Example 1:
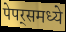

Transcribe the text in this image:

पेपर्समध्ये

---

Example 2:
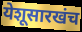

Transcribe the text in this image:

येशूसारखंच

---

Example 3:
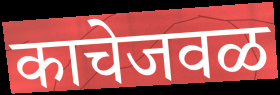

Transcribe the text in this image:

काचेजवळ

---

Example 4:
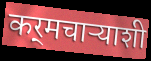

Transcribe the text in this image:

कर्मचाऱ्याशी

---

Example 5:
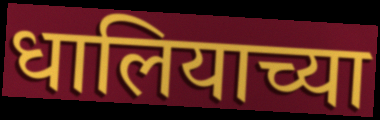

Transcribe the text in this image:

धालियाच्या